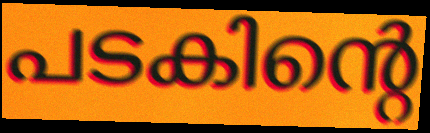
പടകിന്റെ